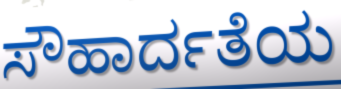
ಸೌಹಾರ್ದತೆಯ